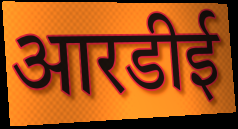
आरडीई